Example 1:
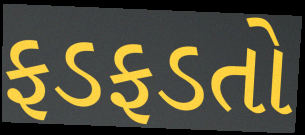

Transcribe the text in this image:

ફડફડતો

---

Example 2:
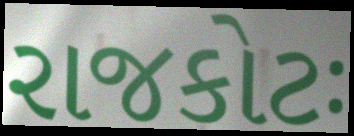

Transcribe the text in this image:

રાજકોટઃ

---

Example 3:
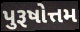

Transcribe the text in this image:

પુરૂષોત્તમ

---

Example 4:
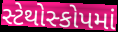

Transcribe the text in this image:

સ્ટેથોસ્કોપમાં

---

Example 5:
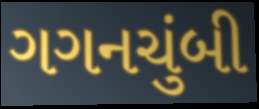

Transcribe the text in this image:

ગગનચુંબી